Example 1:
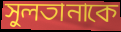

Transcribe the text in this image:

সুলতানাকে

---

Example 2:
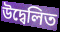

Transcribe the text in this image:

উদ্বেলিত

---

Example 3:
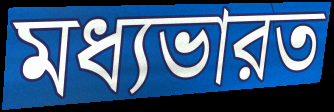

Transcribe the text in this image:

মধ্যভারত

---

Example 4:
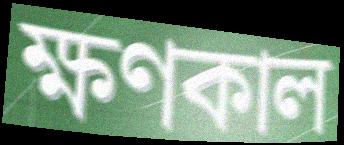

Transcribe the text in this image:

ক্ষণকাল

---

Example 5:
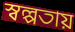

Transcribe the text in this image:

স্বল্পতায়